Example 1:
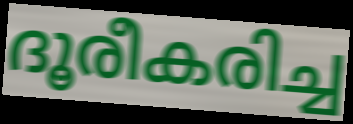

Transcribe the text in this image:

ദൂരീകരിച്ച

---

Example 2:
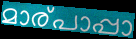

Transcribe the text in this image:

മാര്പാപ്പാ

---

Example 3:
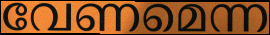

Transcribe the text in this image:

വേണമെന്ന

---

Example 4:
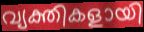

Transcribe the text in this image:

വ്യക്തികളായി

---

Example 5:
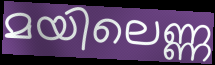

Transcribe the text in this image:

മയിലെണ്ണ